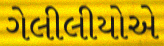
ગેલીલીયોએ